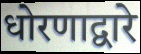
धोरणाद्वारे